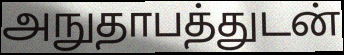
அநுதாபத்துடன்